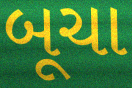
બૂચા